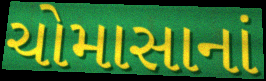
ચોમાસાનાં